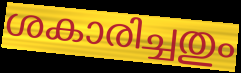
ശകാരിച്ചതും